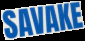
SAVAKE